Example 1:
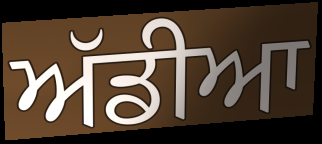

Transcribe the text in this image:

ਅੱਡੀਆ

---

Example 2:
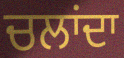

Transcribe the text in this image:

ਚਲਾਂਦਾ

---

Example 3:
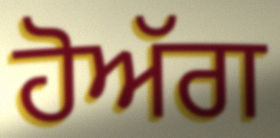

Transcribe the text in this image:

ਹੋਅੱਗ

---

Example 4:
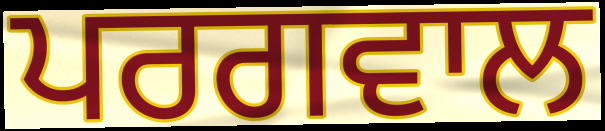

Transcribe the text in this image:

ਪਰਗਵਾਲ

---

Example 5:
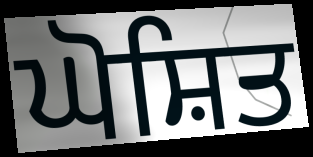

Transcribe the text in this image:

ਘੋਸ਼ਿਤ